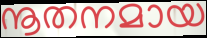
നൂതനമായ